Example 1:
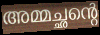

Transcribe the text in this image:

അമ്മച്ഛന്റെ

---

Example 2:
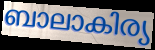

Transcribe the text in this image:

ബാലാകിര്യ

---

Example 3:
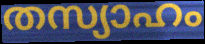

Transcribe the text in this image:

തസ്യാഹം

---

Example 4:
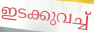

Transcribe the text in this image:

ഇടക്കുവച്ച്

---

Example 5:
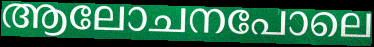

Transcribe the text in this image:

ആലോചനപോലെ